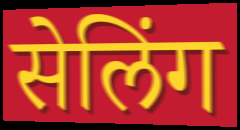
सेलिंग